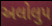
અલોલુપ